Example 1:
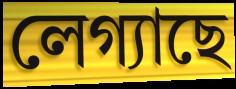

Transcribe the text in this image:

লেগ্যাছে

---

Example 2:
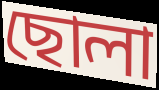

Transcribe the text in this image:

ছোলা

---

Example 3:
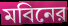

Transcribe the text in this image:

মবিনের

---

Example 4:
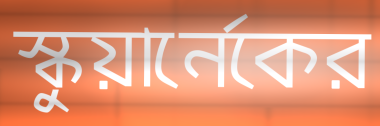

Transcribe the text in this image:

স্কুয়ার্নেকের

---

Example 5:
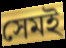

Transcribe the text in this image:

সেমই